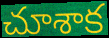
చూశాక